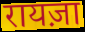
रायज़ा